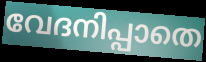
വേദനിപ്പാതെ